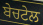
ਬੇਚਟੇਲ